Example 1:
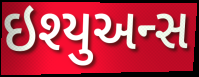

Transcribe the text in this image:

ઇશ્યુઅન્સ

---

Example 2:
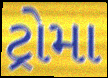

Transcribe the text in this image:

ટ્રોમા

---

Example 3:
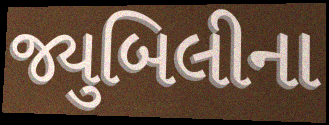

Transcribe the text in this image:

જ્યુબિલીના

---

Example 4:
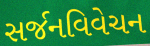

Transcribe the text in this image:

સર્જનવિવેચન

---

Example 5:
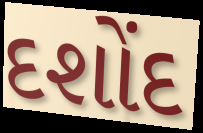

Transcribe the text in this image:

દશોંદ